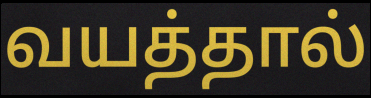
வயத்தால்